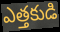
ఎత్తకుడి